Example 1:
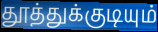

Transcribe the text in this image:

தூத்துக்குடியும்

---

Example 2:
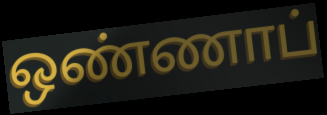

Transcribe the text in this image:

ஒண்ணாப்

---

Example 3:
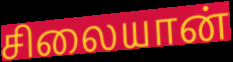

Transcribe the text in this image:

சிலையான்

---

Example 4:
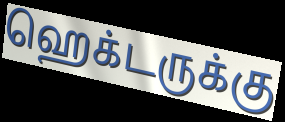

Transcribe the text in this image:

ஹெக்டருக்கு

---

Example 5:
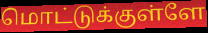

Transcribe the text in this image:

மொட்டுக்குள்ளே